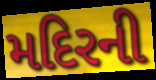
મદિરની